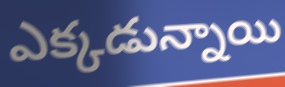
ఎక్కడున్నాయి